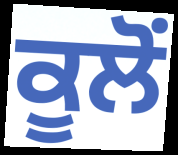
ਕੂਲੋਂ